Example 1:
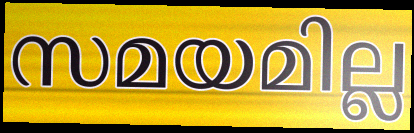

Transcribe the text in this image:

സമയമില്ല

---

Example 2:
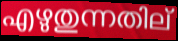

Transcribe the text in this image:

എഴുതുന്നതില്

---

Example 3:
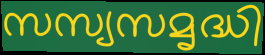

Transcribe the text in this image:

സസ്യസമൃദ്ധി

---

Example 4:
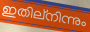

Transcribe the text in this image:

ഇതില്നിന്നും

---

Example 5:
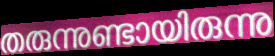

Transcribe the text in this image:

തരുന്നുണ്ടായിരുന്നു